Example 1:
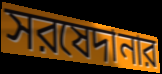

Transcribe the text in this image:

সরষেদানার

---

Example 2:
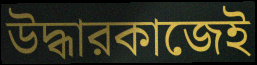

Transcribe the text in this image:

উদ্ধারকাজেই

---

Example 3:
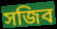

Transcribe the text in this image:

সজিব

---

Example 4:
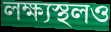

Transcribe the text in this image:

লক্ষ্যস্থলও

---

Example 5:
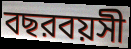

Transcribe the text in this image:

বছরবয়সী